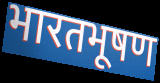
भारतभूषण